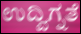
ಉದ್ವಿಗ್ನತೆ